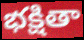
భక్షితా